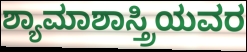
ಶ್ಯಾಮಾಶಾಸ್ತ್ರಿಯವರ